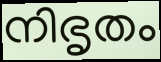
നിഭൃതം